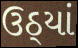
ઉઠ્યાં